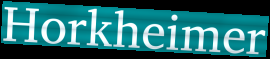
Horkheimer